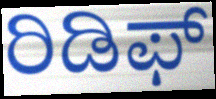
ರಿಡಿಫ್